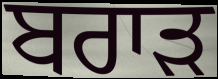
ਬਰਾਡ਼